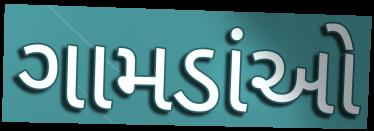
ગામડાંઓ